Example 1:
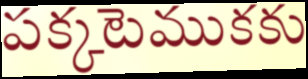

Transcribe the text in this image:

పక్కటెముకకు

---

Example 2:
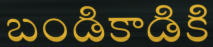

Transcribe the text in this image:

బండికాడికి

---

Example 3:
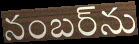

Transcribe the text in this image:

నంబర్‌ను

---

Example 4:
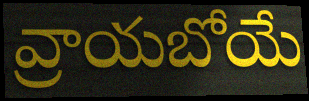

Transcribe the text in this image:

వ్రాయబోయే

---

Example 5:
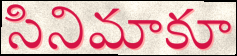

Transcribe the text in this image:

సినిమాకూ